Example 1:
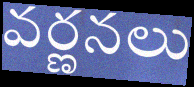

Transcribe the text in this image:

వర్ణనలు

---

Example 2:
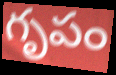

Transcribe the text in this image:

గృపం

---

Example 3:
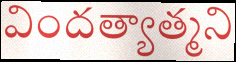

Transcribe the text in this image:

విందత్యాత్మని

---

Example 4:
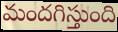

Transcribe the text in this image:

మందగిస్తుంది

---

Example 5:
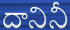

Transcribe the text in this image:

దానినీ